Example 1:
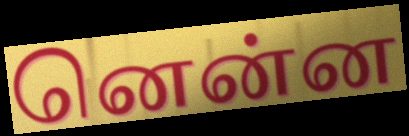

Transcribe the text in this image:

னென்ன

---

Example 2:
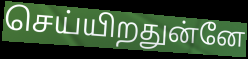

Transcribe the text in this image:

செய்யிறதுன்னே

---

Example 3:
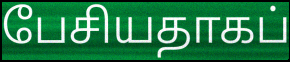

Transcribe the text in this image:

பேசியதாகப்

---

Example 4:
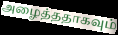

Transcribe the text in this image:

அழைத்ததாகவும்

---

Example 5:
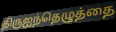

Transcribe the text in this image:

திருஐந்தெழுத்தை